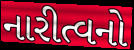
નારીત્વનો